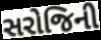
સરોજિની